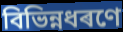
বিভিন্নধৰণে